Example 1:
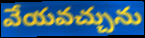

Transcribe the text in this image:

వేయవచ్చును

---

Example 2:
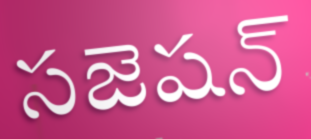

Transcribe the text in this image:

సజెషన్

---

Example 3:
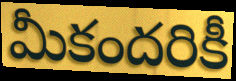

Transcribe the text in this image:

మీకందరికీ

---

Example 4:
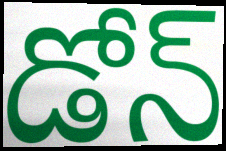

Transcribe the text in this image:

డోన్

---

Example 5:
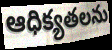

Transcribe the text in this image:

ఆధిక్యతలను